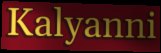
Kalyanni